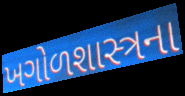
ખગોળશાસ્ત્રના